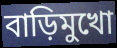
বাড়িমুখো